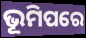
ଭୂମିପରେ